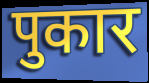
पुकार